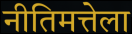
नीतिमत्तेला